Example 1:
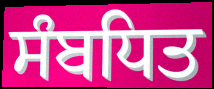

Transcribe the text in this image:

ਸੰਬਧਿਤ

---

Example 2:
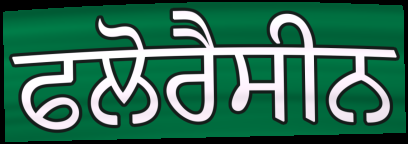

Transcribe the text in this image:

ਫਲੋਰੈਸੀਨ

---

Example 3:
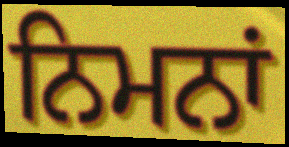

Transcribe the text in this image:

ਨਿਮਨਾਂ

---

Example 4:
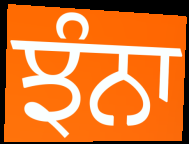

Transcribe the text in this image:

ਝੰਨਾ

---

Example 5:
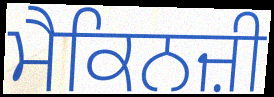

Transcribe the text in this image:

ਮੈਕਿਨਜ਼ੀ